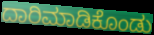
ದಾರಿಮಾಡಿಕೊಂಡು